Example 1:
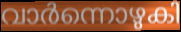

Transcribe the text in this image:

വാർന്നൊഴുകി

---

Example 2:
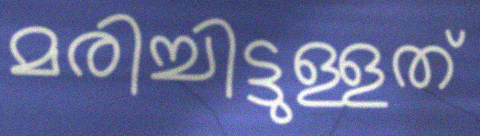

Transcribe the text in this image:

മരിച്ചിട്ടുള്ളത്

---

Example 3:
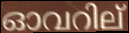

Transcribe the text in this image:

ഓവറില്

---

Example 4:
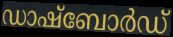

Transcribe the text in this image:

ഡാഷ്ബോർഡ്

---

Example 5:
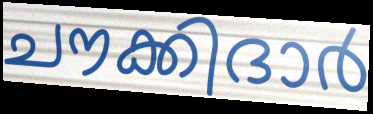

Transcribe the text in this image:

ചൗക്കിദാർ